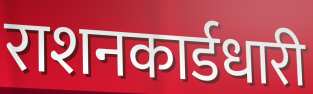
राशनकार्डधारी